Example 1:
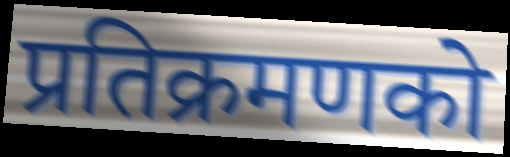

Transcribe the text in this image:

प्रतिक्रमणको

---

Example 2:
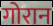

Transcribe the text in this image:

गोरान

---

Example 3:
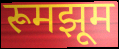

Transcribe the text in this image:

रूमझूम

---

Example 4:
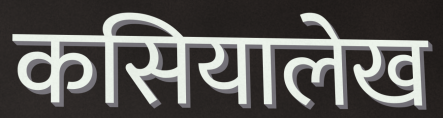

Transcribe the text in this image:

कसियालेख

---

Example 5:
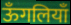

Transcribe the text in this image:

ऊँगलियाँ